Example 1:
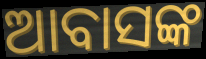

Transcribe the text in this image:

ଆବାସଙ୍କ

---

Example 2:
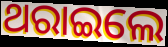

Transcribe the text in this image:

ଥରାଇଲେ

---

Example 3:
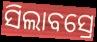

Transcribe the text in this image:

ସିଲାବସ୍ରେ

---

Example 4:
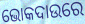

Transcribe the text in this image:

ଭୋକଦାଉରେ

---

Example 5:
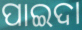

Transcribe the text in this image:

ପାଇଦା